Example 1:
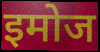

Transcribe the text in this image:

इमोज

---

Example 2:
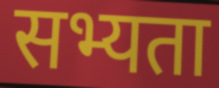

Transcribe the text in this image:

सभ्यता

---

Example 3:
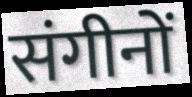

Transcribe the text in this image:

संगीनों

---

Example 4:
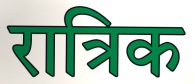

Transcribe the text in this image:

रात्रिक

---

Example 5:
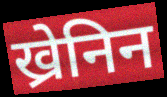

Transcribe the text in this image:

ख्रेनिन